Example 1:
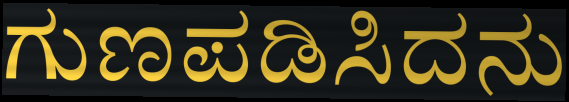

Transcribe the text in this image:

ಗುಣಪಡಿಸಿದನು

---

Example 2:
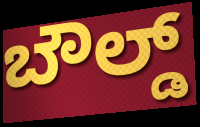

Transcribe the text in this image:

ಬೌಲ್ಡ್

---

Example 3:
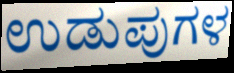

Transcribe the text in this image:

ಉಡುಪುಗಳ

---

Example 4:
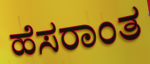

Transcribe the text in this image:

ಹೆಸರಾಂತ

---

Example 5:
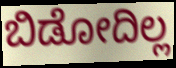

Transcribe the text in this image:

ಬಿಡೋದಿಲ್ಲ